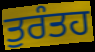
ਤੁਰੰਤਹ